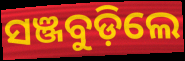
ସଞ୍ଜବୁଡ଼ିଲେ